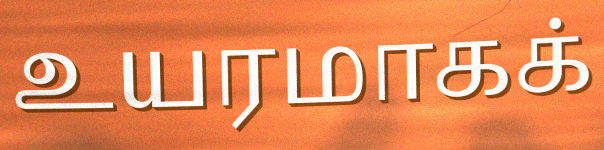
உயரமாகக்